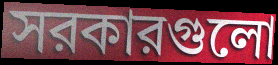
সরকারগুলো